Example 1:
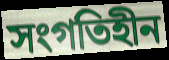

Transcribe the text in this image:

সংগতিহীন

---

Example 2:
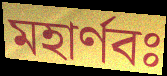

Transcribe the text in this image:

মহার্ণবঃ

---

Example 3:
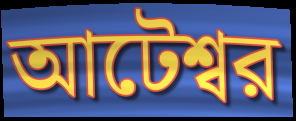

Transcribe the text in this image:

আটেশ্বর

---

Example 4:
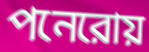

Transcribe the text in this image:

পনেরোয়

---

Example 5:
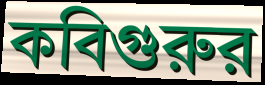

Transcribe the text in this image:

কবিগুরুর